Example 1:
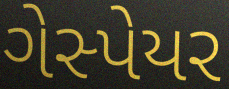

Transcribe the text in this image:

ગેસ્પેયર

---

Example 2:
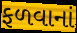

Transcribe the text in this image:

ફળવાનાં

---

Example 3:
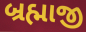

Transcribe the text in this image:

બ્રહ્માજી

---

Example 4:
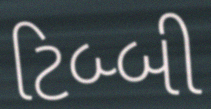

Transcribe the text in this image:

ટિબ્બી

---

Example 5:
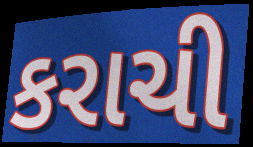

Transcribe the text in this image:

કરાચી